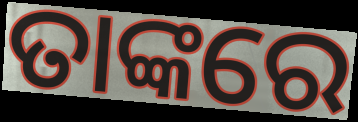
ତାଙ୍କରେ